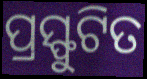
ପ୍ରସ୍ଫୁଟିତ